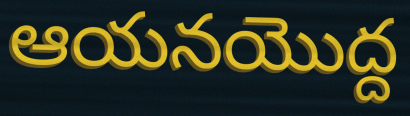
ఆయనయొద్ద